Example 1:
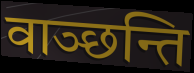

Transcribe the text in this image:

वाञ्छन्ति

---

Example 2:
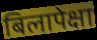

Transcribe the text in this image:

बिलापेक्षा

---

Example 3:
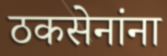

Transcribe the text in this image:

ठकसेनांना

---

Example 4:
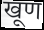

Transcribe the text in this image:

खूण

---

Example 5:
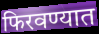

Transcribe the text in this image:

फिरवण्यात